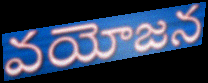
వయోజన